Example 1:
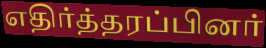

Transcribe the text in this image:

எதிர்த்தரப்பினர்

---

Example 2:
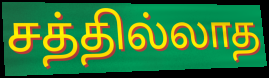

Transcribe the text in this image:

சத்தில்லாத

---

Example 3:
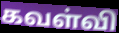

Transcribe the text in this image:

கவள்வி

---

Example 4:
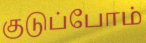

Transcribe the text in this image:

குடுப்போம்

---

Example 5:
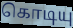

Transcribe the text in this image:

கொடியு